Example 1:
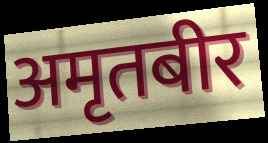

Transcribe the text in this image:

अमृतबीर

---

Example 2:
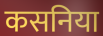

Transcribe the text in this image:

कसनिया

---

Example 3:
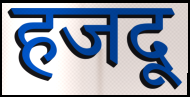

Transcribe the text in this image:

हजदू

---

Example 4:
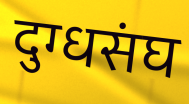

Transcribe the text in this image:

दुग्धसंघ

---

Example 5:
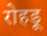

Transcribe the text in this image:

रोहड़ू